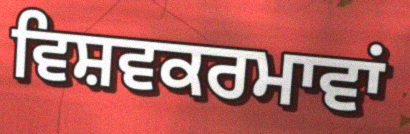
ਵਿਸ਼ਵਕਰਮਾਵਾਂ